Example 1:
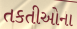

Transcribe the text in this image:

તકતીઓના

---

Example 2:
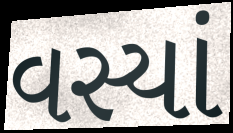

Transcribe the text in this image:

વસ્યાં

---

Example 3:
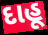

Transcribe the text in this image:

દાહૂ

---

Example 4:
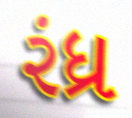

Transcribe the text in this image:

રંધ્ર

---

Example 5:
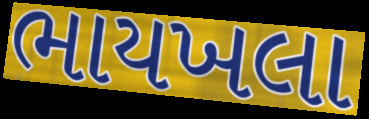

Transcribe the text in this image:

ભાયખલા